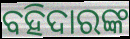
ବହିଦାରଙ୍କ